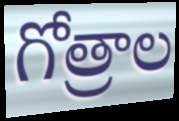
గోత్రాల